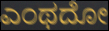
ಎಂಥದೋ